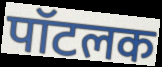
पॉटलक